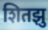
शितझु